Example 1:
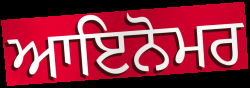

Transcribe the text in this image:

ਆਇਨੋਮਰ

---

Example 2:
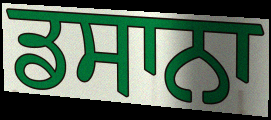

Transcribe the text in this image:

ਡਸਾਨਾ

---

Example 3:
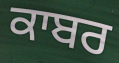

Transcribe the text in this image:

ਕਾਬਰ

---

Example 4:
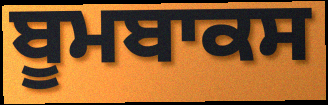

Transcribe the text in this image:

ਬੂਮਬਾਕਸ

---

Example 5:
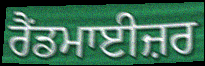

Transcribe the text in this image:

ਰੈਂਡਮਾਈਜ਼ਰ